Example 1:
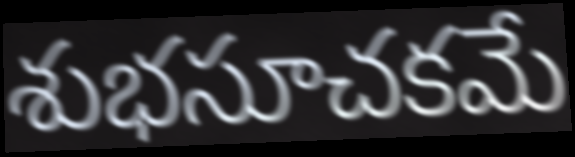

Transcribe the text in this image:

శుభసూచకమే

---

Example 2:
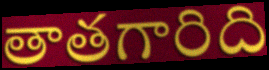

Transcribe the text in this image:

తాతగారిది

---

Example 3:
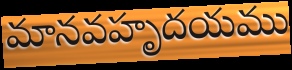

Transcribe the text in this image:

మానవహృదయము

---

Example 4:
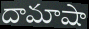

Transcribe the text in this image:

దామాషా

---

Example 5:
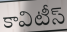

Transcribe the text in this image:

కావిటీస్